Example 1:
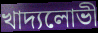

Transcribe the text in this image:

খাদ্যলোভী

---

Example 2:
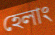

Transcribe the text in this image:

হেলাং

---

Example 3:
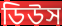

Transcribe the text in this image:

ডিউস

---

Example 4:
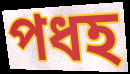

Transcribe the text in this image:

পধহ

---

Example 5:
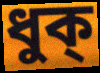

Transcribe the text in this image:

ধুক্